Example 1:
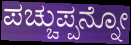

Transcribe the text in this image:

ಪಚ್ಚುಪ್ಪನ್ನೋ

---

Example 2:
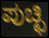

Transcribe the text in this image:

ಪುಚ್ಛಿ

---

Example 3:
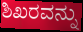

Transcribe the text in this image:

ಶಿಖರವನ್ನು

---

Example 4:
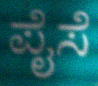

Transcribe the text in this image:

ಪೈಸೆ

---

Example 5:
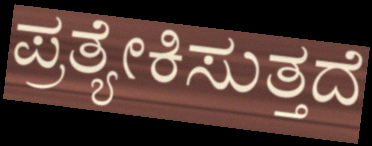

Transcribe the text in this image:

ಪ್ರತ್ಯೇಕಿಸುತ್ತದೆ